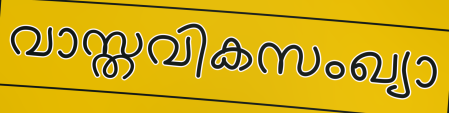
വാസ്തവികസംഖ്യാ